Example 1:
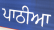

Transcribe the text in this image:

ਪਾਠੀਆ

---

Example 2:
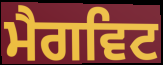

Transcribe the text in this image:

ਮੈਗਵਿਟ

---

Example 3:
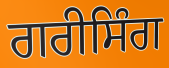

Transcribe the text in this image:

ਗਰੀਸਿੰਗ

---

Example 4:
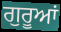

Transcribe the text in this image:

ਗੁਰੂਆਂ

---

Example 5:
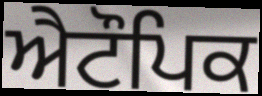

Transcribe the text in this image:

ਐਟੌਪਿਕ